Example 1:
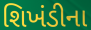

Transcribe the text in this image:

શિખંડીના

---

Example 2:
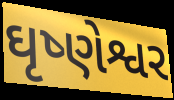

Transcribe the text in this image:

ઘૃષ્ણેશ્વર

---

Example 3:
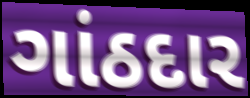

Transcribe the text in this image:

ગાંઠદાર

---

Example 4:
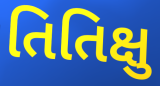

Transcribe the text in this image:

તિતિક્ષુ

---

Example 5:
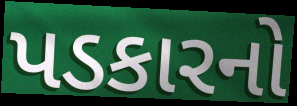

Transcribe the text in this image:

પડકારનો